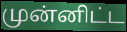
முன்னிட்ட